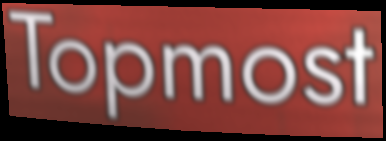
Topmost